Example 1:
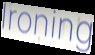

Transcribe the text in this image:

Ironing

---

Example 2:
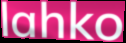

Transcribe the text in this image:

lahko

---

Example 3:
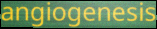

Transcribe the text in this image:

angiogenesis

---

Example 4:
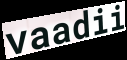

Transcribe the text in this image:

vaadii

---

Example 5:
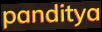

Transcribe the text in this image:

panditya